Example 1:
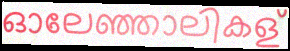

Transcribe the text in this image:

ഓലേഞ്ഞാലികള്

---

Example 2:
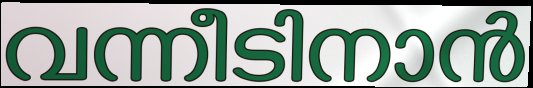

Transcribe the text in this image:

വന്നീടിനാൻ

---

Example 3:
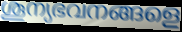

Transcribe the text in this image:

ശൂന്യഭവനങ്ങളെ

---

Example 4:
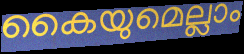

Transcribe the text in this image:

കൈയുമെല്ലാം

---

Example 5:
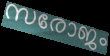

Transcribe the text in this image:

സരോജം